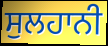
ਸੁਲਹਾਨੀ